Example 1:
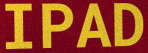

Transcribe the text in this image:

IPAD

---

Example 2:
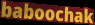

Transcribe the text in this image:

baboochak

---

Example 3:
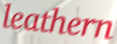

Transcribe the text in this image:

leathern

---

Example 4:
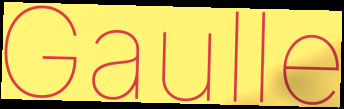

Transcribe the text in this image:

Gaulle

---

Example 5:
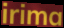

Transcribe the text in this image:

irima